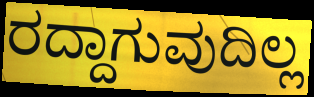
ರದ್ದಾಗುವುದಿಲ್ಲ